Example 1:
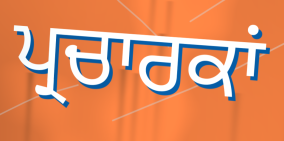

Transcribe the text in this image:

ਪ੍ਰਚਾਰਕਾਂ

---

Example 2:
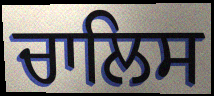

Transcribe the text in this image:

ਚਾਲਿਸ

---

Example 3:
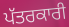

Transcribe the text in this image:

ਪੱਤਰਕਾਰੀ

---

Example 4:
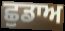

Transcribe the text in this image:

ਛੁਡਾਅ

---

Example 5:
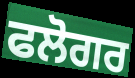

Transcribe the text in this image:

ਫਲੋਗਰ